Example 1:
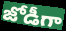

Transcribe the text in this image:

జోడీగా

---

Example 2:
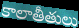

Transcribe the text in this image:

కాలాతీతులు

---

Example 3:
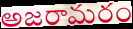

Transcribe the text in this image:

అజరామరం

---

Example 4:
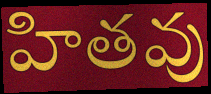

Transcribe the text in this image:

హితవు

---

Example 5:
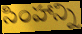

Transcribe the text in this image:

సింహాన్ని